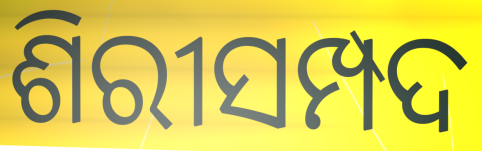
ଶିରୀସମ୍ପଦ